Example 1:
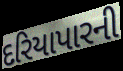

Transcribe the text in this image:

દરિયાપારની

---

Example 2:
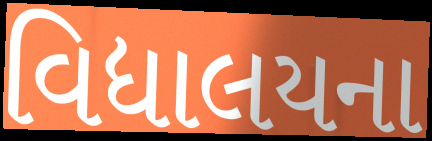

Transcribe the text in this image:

વિદ્યાલયના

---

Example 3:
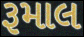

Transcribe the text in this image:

રૂમાલ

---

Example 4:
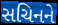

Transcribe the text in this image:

સચિનને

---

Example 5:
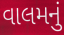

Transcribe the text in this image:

વાલમનું